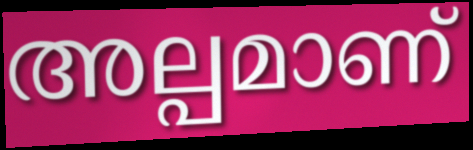
അല്പമാണ്